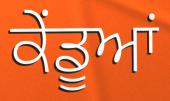
ਕੇਂਡੂਆਂ